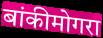
बांकीमोगरा